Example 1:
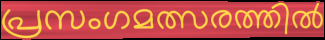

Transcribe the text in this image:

പ്രസംഗമത്സരത്തിൽ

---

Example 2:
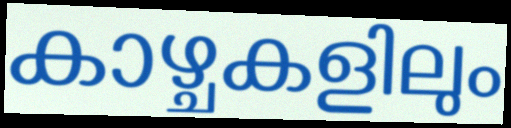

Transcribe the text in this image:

കാഴ്ചകളിലും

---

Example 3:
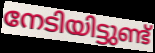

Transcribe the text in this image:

നേടിയിട്ടുണ്ട്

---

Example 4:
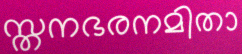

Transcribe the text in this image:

സ്തനഭരനമിതാ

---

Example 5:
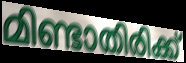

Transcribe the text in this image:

മിണ്ടാതിരിക്ക്